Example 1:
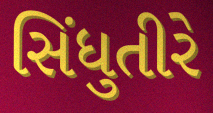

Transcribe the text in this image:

સિંધુતીરે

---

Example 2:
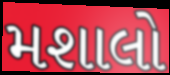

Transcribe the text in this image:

મશાલો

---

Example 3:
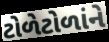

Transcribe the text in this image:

ટોળેટોળાંને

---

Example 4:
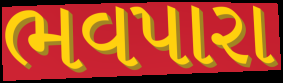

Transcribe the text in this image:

ભવપારા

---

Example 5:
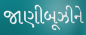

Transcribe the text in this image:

જાણીબૂઝીને